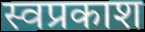
स्वप्रकाश